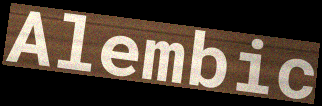
Alembic